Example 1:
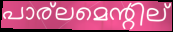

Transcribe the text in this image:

പാര്ലമെന്റില്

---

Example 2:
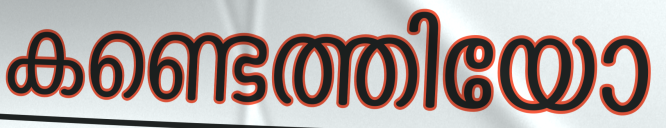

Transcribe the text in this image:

കണ്ടെത്തിയോ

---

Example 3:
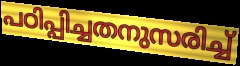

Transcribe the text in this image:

പഠിപ്പിച്ചതനുസരിച്ച്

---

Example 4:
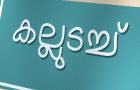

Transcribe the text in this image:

കല്ലുടച്ച്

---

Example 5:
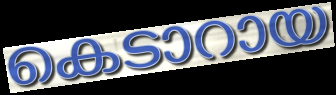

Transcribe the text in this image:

കെടാറായ